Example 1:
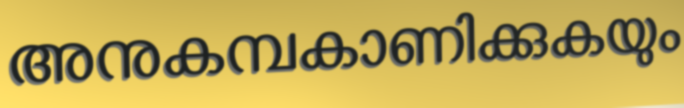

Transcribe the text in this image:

അനുകമ്പകാണിക്കുകയും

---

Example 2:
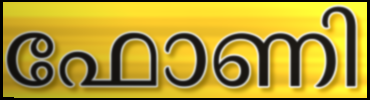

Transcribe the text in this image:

ഫോണി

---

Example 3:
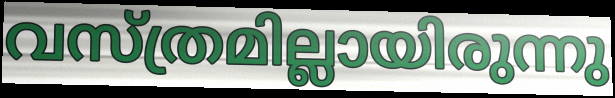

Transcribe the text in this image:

വസ്ത്രമില്ലായിരുന്നു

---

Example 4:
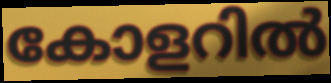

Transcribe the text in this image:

കോളറിൽ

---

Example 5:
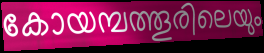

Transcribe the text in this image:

കോയമ്പത്തൂരിലെയും